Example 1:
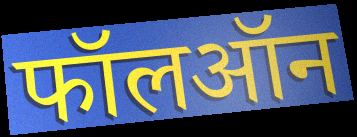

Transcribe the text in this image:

फॉलऑन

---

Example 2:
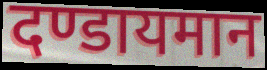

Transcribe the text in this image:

दण्डायमान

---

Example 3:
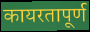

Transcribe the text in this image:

कायरतापूर्ण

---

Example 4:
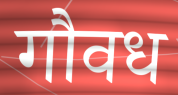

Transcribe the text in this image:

गौवध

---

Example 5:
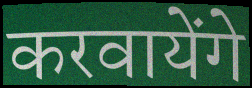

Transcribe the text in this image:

करवायेंगे